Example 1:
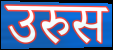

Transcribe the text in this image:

उरुस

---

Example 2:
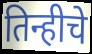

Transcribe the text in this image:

तिन्हीचे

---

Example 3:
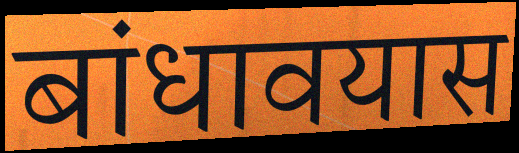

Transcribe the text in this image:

बांधावयास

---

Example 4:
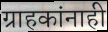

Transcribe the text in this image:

ग्राहकांनाही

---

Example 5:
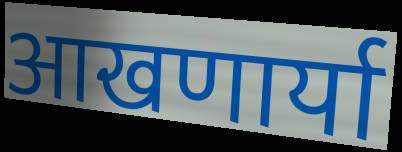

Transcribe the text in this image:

आखणार्या